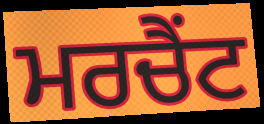
ਮਰਚੈਂਟ